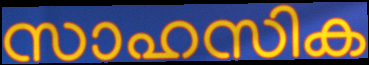
സാഹസിക